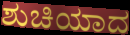
ಶುಚಿಯಾದ